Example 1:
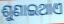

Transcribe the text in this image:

ଶୁଣାଇଥାଏ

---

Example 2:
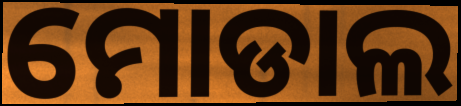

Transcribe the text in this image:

ମୋଡାଲ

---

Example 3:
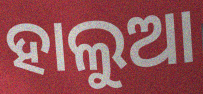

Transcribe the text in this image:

ହାଲୁଆ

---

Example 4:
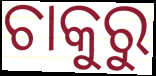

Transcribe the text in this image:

ଚାକୁରୁ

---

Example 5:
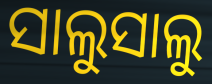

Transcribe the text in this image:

ସାଲୁସାଲୁ